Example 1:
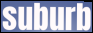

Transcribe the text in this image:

suburb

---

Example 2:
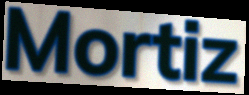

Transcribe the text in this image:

Mortiz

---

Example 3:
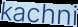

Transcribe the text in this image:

kachni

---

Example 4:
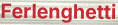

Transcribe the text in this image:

Ferlenghetti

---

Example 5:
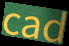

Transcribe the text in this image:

cad